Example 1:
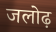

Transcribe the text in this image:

जलोढ़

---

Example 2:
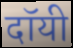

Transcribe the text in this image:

दॉयी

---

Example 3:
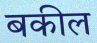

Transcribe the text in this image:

बकील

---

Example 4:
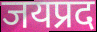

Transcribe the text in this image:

जयप्रद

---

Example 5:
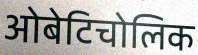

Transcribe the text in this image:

ओबेटिचोलिक